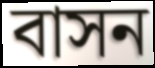
বাসন